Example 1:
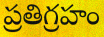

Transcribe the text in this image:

ప్రతిగ్రహం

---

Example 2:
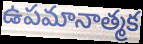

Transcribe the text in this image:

ఉపమానాత్మక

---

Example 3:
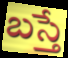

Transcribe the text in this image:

బస్తే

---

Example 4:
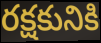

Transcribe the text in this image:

రక్షకునికి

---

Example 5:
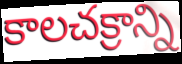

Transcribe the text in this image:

కాలచక్రాన్ని